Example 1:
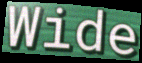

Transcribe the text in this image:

Wide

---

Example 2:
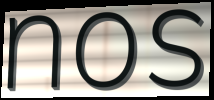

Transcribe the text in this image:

nos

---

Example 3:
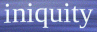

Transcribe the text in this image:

iniquity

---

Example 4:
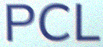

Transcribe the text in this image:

PCL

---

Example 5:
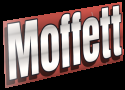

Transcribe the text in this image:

Moffett